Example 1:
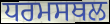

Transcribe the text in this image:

ਧਰਮਸਥਲ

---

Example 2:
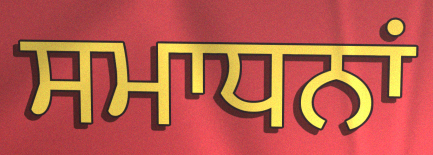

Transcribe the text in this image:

ਸਮਾਧਨਾਂ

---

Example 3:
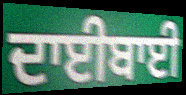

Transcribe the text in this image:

ਦਾਈਬਾਈ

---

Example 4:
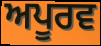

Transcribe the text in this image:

ਅਪੂਰਵ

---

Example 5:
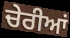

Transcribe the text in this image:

ਚੇਰੀਆਂ